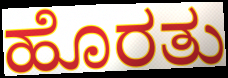
ಹೊರತು